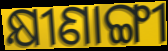
କ୍ଷୀଣାଙ୍ଗୀ